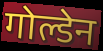
गोल्डेन